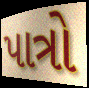
પાત્રો